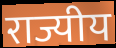
राज्यीय